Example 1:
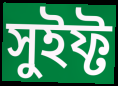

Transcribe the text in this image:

সুইফ্ট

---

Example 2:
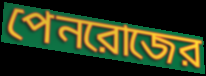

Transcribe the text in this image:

পেনরোজের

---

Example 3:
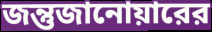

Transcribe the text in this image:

জন্তুজানোয়ারের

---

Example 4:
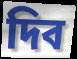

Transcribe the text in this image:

দিব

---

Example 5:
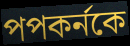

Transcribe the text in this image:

পপকর্নকে